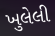
ખુલેલી